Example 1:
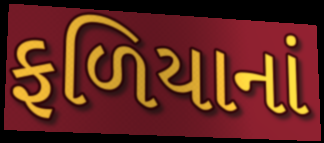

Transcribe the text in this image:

ફળિયાનાં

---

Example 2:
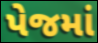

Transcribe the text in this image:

પેજમાં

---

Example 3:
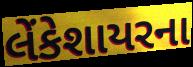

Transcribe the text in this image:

લેંકેશાયરના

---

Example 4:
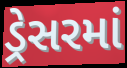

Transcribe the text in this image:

ડ્રેસરમાં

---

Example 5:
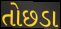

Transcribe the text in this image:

તોછડા